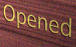
Opened